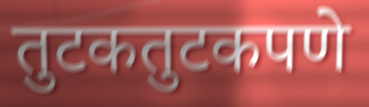
तुटकतुटकपणे